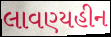
લાવણ્યહીન